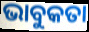
ଭାବୁକତା